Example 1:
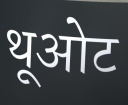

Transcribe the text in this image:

थूओट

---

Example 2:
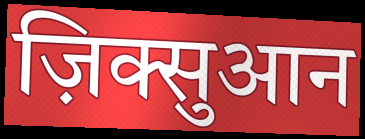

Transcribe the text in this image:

ज़िक्सुआन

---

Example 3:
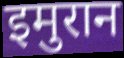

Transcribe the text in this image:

इमुरान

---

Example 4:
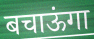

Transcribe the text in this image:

बचाऊंगा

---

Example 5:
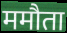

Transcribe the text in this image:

ममौता